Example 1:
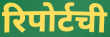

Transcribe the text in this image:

रिपोर्टची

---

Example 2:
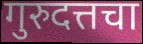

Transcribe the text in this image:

गुरुदत्तचा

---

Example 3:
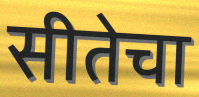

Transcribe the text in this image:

सीतेचा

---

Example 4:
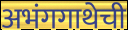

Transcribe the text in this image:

अभंगगाथेची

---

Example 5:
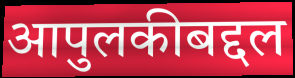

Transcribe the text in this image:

आपुलकीबद्दल